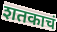
शतकाचं